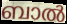
ബാൽ